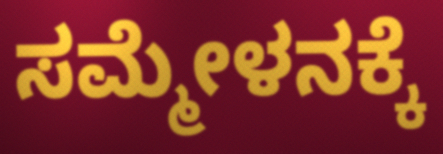
ಸಮ್ಮೇಳನಕ್ಕೆ